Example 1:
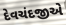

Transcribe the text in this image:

દેવચંદજીએ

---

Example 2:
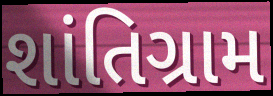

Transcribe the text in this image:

શાંતિગ્રામ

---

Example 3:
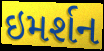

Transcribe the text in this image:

ઇમર્શન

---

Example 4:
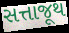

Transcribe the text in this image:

સત્તાજૂથ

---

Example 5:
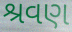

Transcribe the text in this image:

શ્રવણ